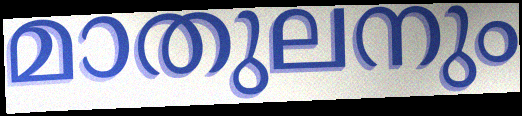
മാതുലനും